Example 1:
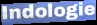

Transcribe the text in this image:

Indologie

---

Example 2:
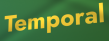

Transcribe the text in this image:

Temporal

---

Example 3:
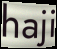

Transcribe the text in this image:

haji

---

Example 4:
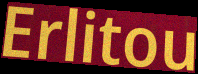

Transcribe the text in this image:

Erlitou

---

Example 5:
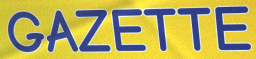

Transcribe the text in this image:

GAZETTE